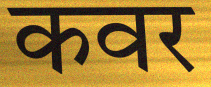
कवर